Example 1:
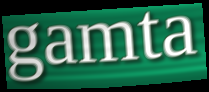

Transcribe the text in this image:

gamta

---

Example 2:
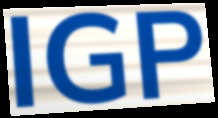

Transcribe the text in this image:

IGP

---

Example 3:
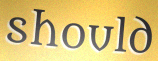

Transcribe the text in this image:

should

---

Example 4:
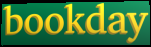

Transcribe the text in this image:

bookday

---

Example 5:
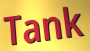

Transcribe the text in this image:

Tank